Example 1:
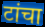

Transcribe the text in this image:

टांचा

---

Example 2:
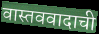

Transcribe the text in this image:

वास्तववादाची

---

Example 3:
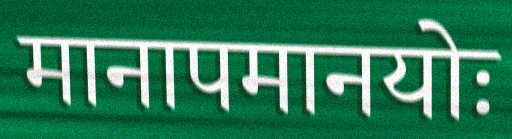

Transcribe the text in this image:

मानापमानयोः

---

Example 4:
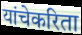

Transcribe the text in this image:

यांचेकरिता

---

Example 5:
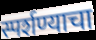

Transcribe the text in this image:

स्पर्शण्याचा